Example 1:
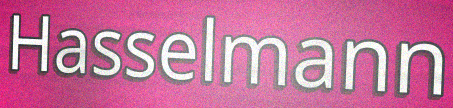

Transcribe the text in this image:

Hasselmann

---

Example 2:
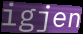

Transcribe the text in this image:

igjen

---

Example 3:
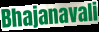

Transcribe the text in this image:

Bhajanavali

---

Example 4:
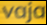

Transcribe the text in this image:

vaja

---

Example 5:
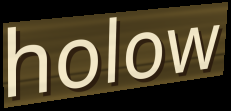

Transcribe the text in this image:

holow